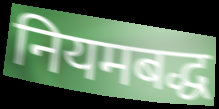
नियमबद्ध